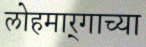
लोहमार्गाच्या